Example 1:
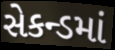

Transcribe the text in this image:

સેકન્ડમાં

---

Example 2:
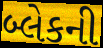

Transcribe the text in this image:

બ્લેકની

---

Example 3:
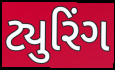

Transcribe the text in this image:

ટ્યુરિંગ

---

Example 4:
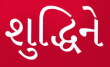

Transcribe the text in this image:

શુદ્ધિને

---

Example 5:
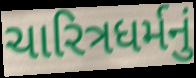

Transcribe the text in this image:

ચારિત્રધર્મનું